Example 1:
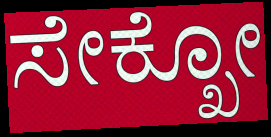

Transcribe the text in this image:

ಸೇಕ್ಖೋ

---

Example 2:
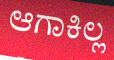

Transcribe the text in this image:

ಆಗಾಕಿಲ್ಲ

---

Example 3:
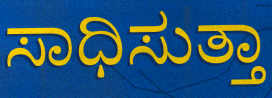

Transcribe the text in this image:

ಸಾಧಿಸುತ್ತಾ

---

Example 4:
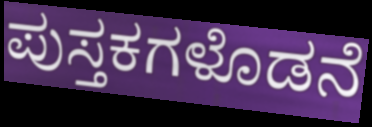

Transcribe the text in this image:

ಪುಸ್ತಕಗಳೊಡನೆ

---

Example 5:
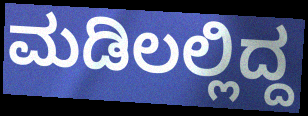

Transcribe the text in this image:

ಮಡಿಲಲ್ಲಿದ್ದ